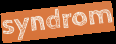
syndrom